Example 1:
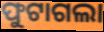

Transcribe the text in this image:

ଫୁଟାଗଲା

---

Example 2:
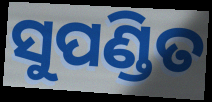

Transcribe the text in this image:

ସୁପଣ୍ଡିତ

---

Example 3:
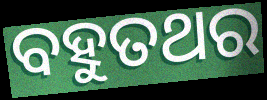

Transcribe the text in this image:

ବହୁତଥର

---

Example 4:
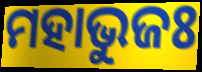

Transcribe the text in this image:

ମହାଭୁଜଃ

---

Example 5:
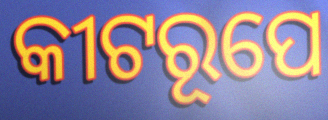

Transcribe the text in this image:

କୀଟରୂପେ